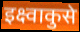
इक्ष्वाकुसे